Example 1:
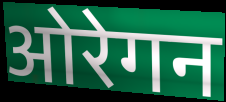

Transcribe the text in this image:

ओरेगन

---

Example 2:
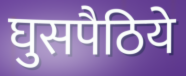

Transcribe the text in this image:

घुसपैठिये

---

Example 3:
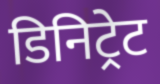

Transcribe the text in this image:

डिनिट्रेट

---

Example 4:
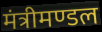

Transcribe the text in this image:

मंत्रीमण्डल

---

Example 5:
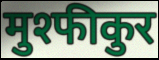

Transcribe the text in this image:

मुश्फीकुर